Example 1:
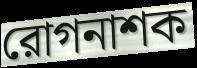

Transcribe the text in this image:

রোগনাশক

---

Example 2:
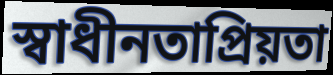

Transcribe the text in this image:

স্বাধীনতাপ্রিয়তা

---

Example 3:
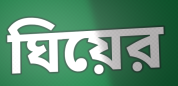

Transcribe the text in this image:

ঘিয়ের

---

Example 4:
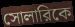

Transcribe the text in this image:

সোলারিকে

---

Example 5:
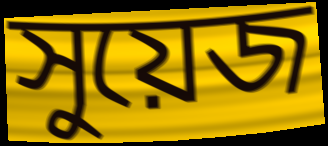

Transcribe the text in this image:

সুয়েজ